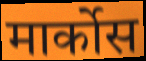
मार्कोस